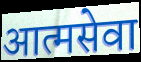
आत्मसेवा